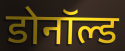
डोनॉल्ड